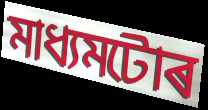
মাধ্যমটোৰ